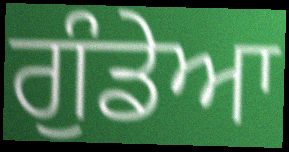
ਗੁੰਡੇਆ